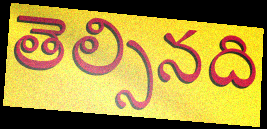
తెల్సినది